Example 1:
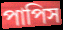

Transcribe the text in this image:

পাপিস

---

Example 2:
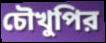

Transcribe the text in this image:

চৌখুপির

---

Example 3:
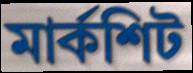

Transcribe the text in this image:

মার্কশিট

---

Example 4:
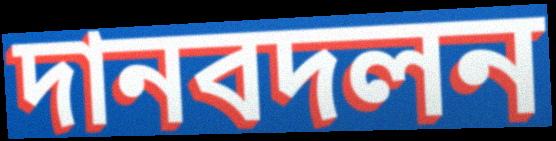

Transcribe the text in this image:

দানবদলন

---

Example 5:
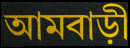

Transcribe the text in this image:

আমবাড়ী